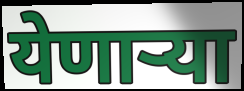
येणाऱ्या